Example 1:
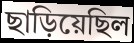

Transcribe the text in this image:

ছাড়িয়েছিল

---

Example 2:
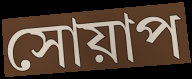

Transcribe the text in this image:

সোয়াপ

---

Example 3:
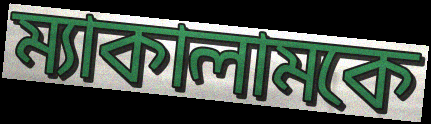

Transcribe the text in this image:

ম্যাকালামকে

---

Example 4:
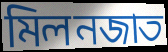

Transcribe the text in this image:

মিলনজাত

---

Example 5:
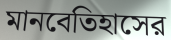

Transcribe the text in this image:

মানবেতিহাসের